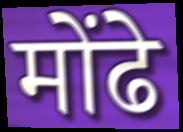
मोंढे